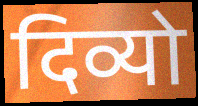
दिव्यो